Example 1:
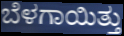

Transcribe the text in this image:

ಬೆಳಗಾಯಿತ್ತು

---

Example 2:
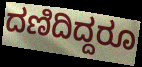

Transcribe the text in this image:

ದಣಿದಿದ್ದರೂ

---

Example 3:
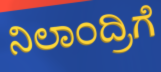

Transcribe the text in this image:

ನಿಲಾಂದ್ರಿಗೆ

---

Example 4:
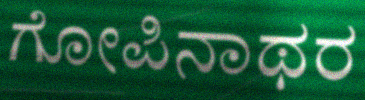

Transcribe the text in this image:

ಗೋಪಿನಾಥರ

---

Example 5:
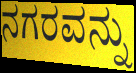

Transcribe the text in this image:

ನಗರವನ್ನು